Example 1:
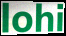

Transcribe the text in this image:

lohi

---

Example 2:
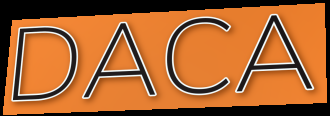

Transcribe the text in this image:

DACA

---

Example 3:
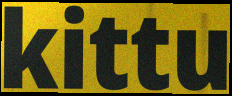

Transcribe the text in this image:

kittu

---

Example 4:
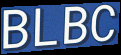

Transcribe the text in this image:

BLBC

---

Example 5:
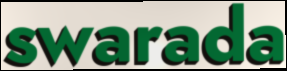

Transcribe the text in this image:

swarada